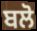
ਬਲੋ